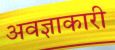
अवज्ञाकारी